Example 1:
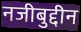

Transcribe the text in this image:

नजीबुद्दीन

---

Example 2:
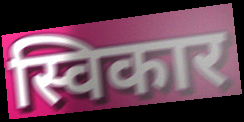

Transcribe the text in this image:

स्विकार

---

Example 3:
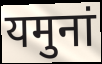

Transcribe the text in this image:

यमुनां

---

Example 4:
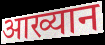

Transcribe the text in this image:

आख्यान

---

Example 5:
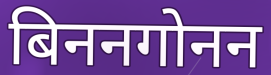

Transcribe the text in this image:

बिननगोनन